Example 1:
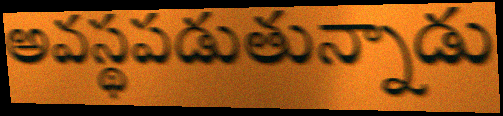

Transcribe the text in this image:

అవస్థపడుతున్నాడు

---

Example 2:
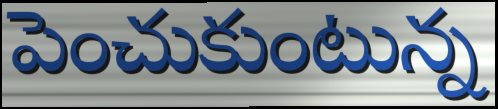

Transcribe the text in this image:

పెంచుకుంటున్న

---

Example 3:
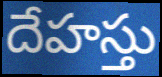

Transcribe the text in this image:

దేహస్తు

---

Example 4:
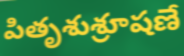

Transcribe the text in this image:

పితృశుశ్రూషణే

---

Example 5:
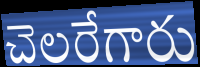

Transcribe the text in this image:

చెలరేగారు